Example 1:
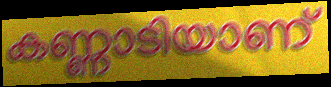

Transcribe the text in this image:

കണ്ണാടിയാണ്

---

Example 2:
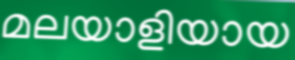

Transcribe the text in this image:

മലയാളിയായ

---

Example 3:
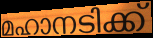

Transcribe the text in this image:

മഹാനടിക്ക്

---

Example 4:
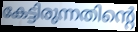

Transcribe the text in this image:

കേട്ടിരുന്നതിന്റെ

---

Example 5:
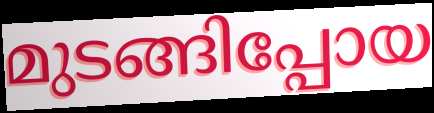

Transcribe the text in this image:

മുടങ്ങിപ്പോയ